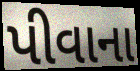
પીવાના